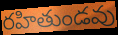
రహితుండవు